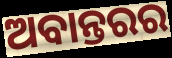
ଅବାନ୍ତରର